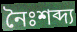
নৈঃশব্দ্য